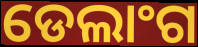
ଡେଲାଂଗ